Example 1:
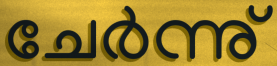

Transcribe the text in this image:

ചേർന്നു്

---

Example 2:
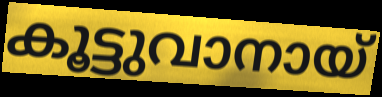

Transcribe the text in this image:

കൂട്ടുവാനായ്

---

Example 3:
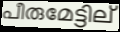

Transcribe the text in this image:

പീരുമേട്ടില്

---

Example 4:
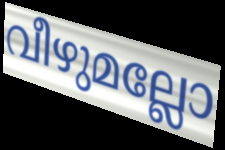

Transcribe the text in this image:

വീഴുമല്ലോ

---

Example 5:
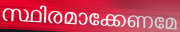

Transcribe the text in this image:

സ്ഥിരമാക്കേണമേ